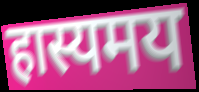
हास्यमय